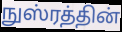
நுஸ்ரத்தின்